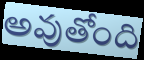
అవుతోంది